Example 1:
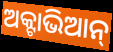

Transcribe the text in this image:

ଅକ୍ଟାଭିଆନ୍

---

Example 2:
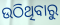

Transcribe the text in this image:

ଉଠିଥିବାରୁ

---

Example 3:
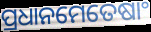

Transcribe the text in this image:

ପ୍ରଧାନମେତେଷାଂ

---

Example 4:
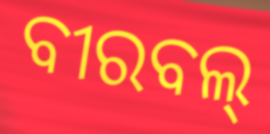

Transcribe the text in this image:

ବୀରବଲ୍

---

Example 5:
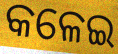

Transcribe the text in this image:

କଳେଇ